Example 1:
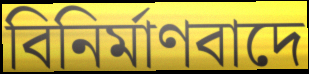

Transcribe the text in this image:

বিনিৰ্মাণবাদে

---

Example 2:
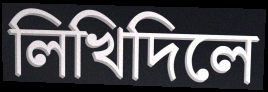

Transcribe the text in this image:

লিখিদিলে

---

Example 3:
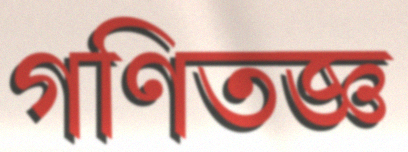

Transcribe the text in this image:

গণিতজ্ঞ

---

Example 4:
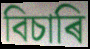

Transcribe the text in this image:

বিচাৰি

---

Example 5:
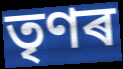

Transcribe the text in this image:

তৃণৰ